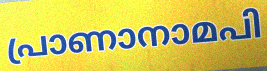
പ്രാണാനാമപി